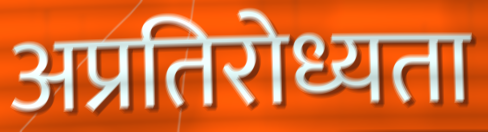
अप्रतिरोध्यता